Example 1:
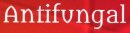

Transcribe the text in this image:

Antifungal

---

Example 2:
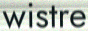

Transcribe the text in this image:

wistre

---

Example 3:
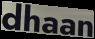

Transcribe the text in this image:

dhaan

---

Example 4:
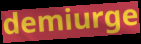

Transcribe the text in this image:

demiurge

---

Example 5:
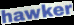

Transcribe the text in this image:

hawker